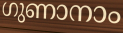
ഗുണാനാം